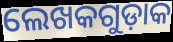
ଲେଖକଗୁଡ଼ାକ